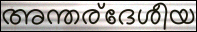
അന്തര്ദേശീയ